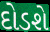
દોડશે